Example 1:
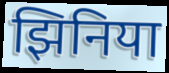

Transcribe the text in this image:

झिनिया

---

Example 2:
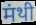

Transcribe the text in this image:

मंथी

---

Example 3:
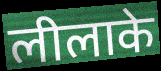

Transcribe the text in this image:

लीलाके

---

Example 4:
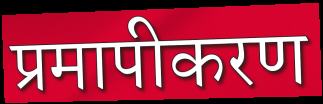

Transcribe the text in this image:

प्रमापीकरण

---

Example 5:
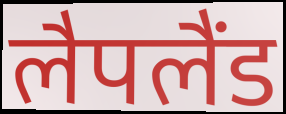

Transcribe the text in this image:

लैपलैंड